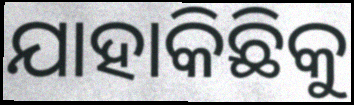
ଯାହାକିଛିକୁ